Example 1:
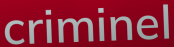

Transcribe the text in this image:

criminel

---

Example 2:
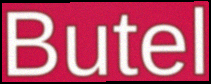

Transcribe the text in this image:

Butel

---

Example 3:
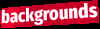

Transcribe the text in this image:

backgrounds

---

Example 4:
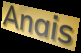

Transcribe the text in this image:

Anais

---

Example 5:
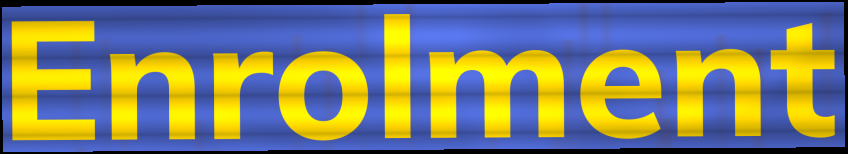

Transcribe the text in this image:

Enrolment